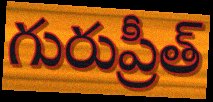
గురుప్రీత్